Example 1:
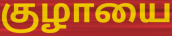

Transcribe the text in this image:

குழாயை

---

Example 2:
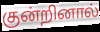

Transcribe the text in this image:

குன்றினால்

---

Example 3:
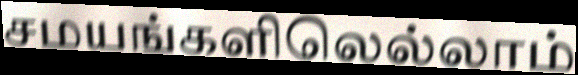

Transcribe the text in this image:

சமயங்களிலெல்லாம்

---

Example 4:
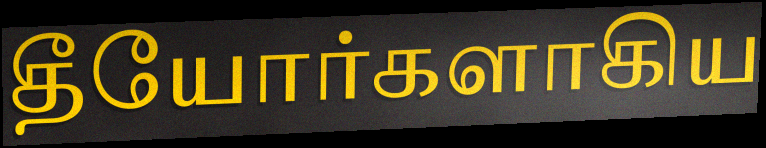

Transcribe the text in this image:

தீயோர்களாகிய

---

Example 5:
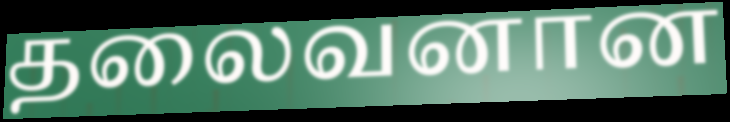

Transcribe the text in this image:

தலைவனான